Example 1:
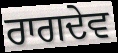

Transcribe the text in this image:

ਰਾਗਦੇਵ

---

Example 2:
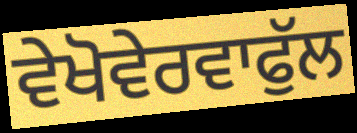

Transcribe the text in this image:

ਵੇਖੋਵੇਰਵਾਫੁੱਲ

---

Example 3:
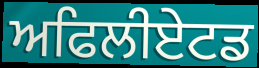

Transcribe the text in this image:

ਅਫਿਲੀਏਟਡ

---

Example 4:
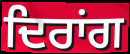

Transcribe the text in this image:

ਦਿਰਾਂਗ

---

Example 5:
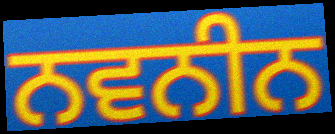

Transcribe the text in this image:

ਨਵਨੀਨ